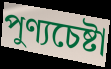
পুণ্যচেষ্টা